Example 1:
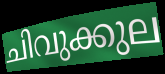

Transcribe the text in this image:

ചിവുക്കുല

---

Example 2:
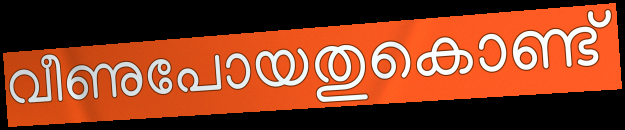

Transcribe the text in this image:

വീണുപോയതുകൊണ്ട്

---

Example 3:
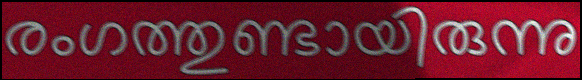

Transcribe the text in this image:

രംഗത്തുണ്ടായിരുന്നു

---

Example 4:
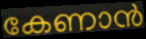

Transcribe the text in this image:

കേണാൻ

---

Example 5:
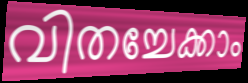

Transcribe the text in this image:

വിതച്ചേക്കാം